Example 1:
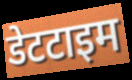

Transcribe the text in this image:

डेटटाइम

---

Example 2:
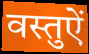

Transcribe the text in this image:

वस्तुऐं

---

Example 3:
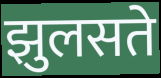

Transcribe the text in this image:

झुलसते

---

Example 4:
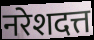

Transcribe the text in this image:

नरेशदत्त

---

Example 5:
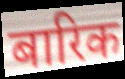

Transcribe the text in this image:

बारिक